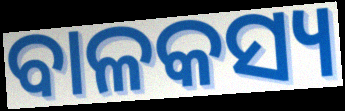
ବାଳକସ୍ୟ